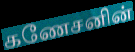
கணேசனின்